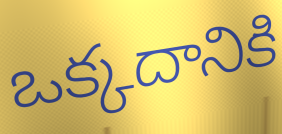
ఒక్కదానికి